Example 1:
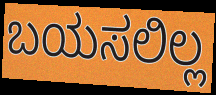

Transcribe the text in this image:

ಬಯಸಲಿಲ್ಲ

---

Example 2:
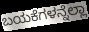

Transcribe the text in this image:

ಬಯಕೆಗಳನ್ನೆಲ್ಲಾ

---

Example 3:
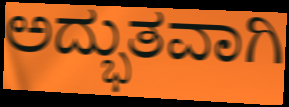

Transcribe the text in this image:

ಅದ್ಭುತವಾಗಿ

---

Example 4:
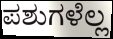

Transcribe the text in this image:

ಪಶುಗಳೆಲ್ಲ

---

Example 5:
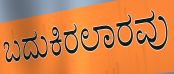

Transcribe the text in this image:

ಬದುಕಿರಲಾರವು